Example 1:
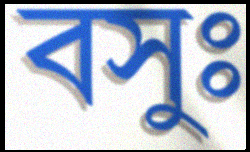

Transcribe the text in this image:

বসুঃ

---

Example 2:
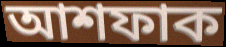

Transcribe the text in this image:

আশফাক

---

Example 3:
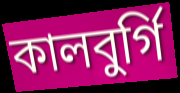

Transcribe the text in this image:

কালবুর্গি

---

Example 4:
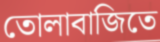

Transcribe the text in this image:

তোলাবাজিতে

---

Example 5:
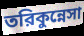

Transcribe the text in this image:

তরিকুন্নেসা